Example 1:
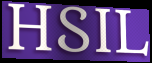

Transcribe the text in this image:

HSIL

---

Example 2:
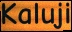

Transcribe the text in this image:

Kaluji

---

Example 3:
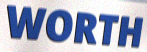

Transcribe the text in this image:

WORTH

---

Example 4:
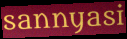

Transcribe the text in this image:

sannyasi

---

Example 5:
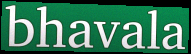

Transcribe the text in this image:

bhavala